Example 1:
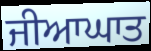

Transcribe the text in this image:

ਜੀਆਘਾਤ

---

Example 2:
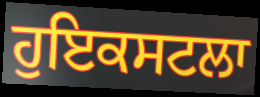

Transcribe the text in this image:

ਹੁਇਕਸਟਲਾ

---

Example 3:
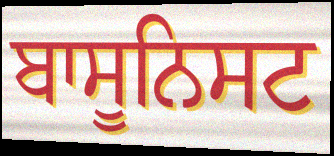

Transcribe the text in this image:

ਬਾਸੂਨਿਸਟ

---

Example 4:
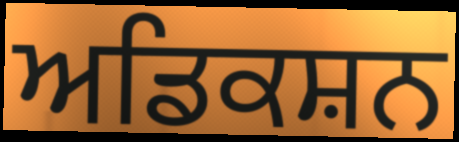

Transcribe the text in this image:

ਅਡਿਕਸ਼ਨ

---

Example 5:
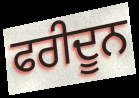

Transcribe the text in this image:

ਫਰੀਦੂਨ